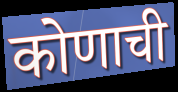
कोणाची